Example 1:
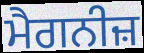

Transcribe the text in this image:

ਮੈਗਨੀਜ਼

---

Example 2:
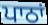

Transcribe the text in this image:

ਪਾਠਾਂ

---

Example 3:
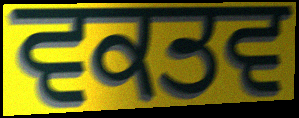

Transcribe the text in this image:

ਵਕਤਵ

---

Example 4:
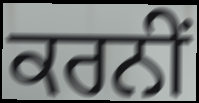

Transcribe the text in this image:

ਕਰਨੀਂ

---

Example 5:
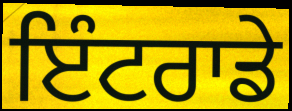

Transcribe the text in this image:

ਇੰਟਰਾਡੇ